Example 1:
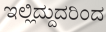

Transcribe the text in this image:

ಇಲ್ಲಿದ್ದುದರಿಂದ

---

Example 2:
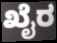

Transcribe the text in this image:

ಖೈರ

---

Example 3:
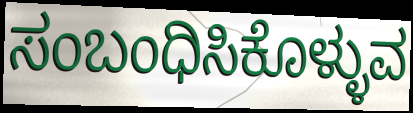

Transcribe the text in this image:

ಸಂಬಂಧಿಸಿಕೊಳ್ಳುವ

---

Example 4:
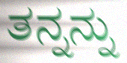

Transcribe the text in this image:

ತನ್ನನ್ನು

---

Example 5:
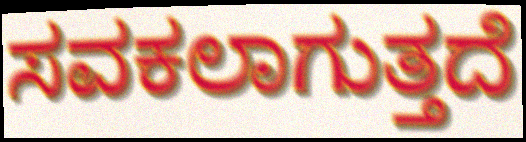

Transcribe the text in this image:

ಸವಕಲಾಗುತ್ತದೆ